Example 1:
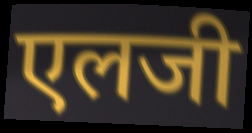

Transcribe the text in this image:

एलजी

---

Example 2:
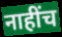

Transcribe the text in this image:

नाहींच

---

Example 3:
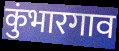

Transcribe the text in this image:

कुंभारगाव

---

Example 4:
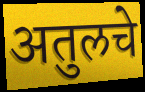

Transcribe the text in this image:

अतुलचे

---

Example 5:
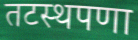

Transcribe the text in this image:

तटस्थपणा